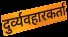
दुर्व्यवहारकर्ता